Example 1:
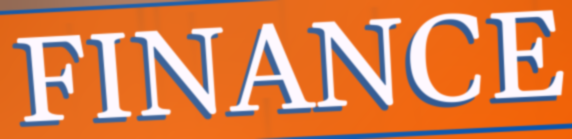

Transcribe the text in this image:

FINANCE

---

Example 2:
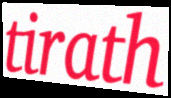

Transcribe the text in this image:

tirath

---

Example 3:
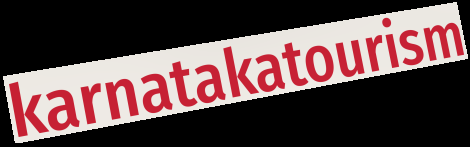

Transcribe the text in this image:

karnatakatourism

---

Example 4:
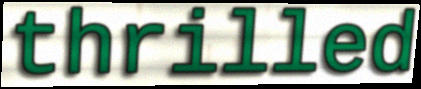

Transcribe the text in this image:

thrilled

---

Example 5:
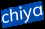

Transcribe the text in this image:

chiya